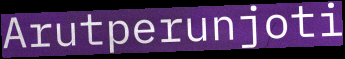
Arutperunjoti